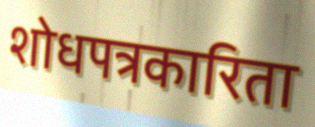
शोधपत्रकारिता